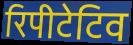
रिपीटेटिव